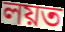
লয়ত